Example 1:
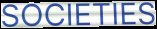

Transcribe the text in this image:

SOCIETIES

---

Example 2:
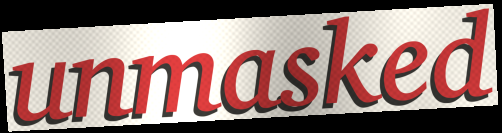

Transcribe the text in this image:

unmasked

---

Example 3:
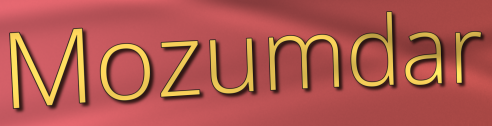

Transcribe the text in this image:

Mozumdar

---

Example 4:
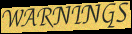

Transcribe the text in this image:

WARNINGS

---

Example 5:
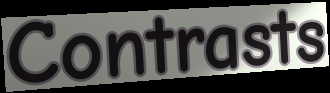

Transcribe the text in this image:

Contrasts